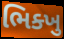
ભિક્ખુ